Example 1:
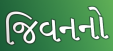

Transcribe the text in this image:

જિવનનો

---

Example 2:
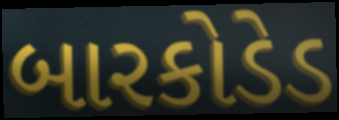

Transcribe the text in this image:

બારકોડેડ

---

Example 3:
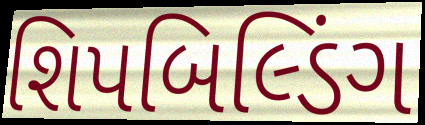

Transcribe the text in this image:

શિપબિલ્ડિંગ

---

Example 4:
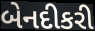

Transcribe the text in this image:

બેનદીકરી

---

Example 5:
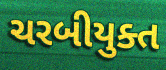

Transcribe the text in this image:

ચરબીયુક્ત